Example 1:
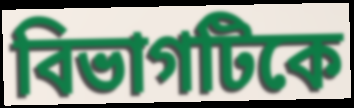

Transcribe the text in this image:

বিভাগটিকে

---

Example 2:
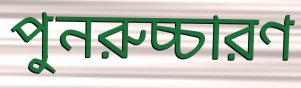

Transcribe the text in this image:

পুনরুচ্চারণ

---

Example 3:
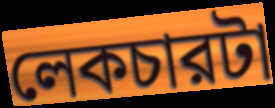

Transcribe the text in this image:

লেকচারটা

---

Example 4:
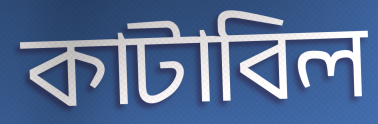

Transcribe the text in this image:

কাটাবিল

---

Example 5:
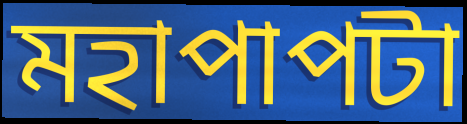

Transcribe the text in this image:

মহাপাপটা